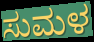
ಸುಮಳ